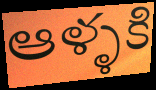
ఆళ్ళకి